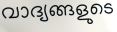
വാദ്യങ്ങളുടെ